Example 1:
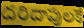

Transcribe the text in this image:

దరిదాపులకే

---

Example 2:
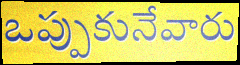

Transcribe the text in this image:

ఒప్పుకునేవారు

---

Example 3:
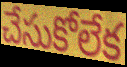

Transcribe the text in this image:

చేసుకోలేక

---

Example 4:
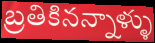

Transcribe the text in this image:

బ్రతికినన్నాళ్ళు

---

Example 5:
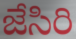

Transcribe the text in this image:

జేసిరి